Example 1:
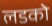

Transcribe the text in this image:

लडको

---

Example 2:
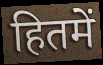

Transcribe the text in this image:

हितमें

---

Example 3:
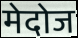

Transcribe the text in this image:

मेदोज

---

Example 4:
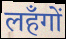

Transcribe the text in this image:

लहँगों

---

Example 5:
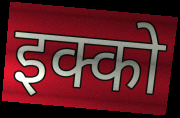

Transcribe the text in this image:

इक्को